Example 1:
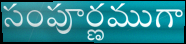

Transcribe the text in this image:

సంపూర్ణముగా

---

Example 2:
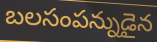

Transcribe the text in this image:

బలసంపన్నుడైన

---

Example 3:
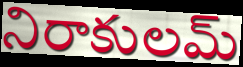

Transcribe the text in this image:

నిరాకులమ్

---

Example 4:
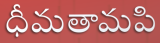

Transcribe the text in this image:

ధీమతామపి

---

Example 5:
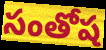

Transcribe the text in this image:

సంతోష